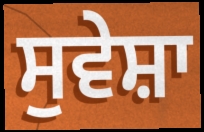
ਸੁਵੇਸ਼ਾ